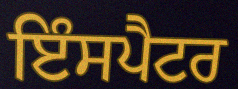
ਇੰਸਪੈਟਰ